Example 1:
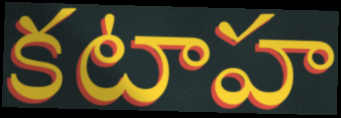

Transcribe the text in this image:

కటాహ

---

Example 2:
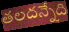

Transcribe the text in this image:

తలదన్నేది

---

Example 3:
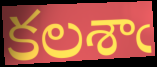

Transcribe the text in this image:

కలశాఁ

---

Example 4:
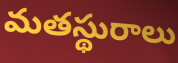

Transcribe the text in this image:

మతస్థురాలు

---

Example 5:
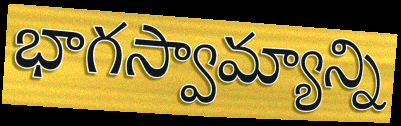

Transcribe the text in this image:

భాగస్వామ్యాన్ని